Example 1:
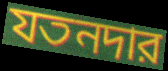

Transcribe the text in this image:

যতনদার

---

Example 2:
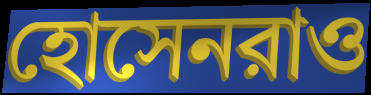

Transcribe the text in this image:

হোসেনরাও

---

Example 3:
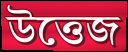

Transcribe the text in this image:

উত্তেজ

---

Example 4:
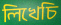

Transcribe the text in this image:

লিখেচি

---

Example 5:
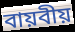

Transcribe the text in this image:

বায়বীয়